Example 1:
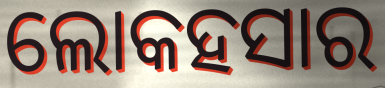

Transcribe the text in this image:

ଲୋକହସାର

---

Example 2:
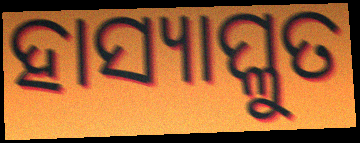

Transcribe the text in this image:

ହାସ୍ୟାପ୍ଳୁତ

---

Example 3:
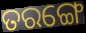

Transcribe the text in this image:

ତରଙ୍ଗେ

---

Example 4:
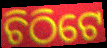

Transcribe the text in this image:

ଚିଠିଟେ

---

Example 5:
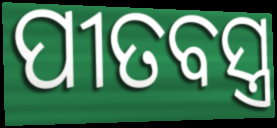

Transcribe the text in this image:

ପୀତବସ୍ତ୍ର